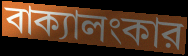
বাক্যালংকার